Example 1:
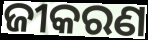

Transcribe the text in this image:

ଜୀକରଣ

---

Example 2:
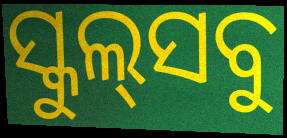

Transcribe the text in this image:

ସ୍କୁଲ୍‍ସବୁ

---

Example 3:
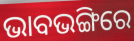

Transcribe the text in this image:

ଭାବଭଙ୍ଗିରେ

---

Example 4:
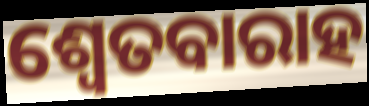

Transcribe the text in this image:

ଶ୍ଵେତବାରାହ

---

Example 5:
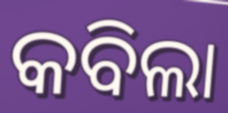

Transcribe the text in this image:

କବିଲା